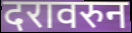
दरावरुन